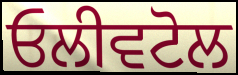
ਓਲੀਵਟੋਲ